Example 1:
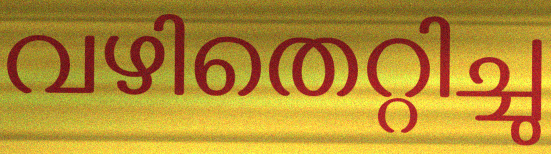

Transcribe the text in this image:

വഴിതെറ്റിച്ചു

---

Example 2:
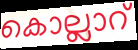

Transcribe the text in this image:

കൊല്ലാറ്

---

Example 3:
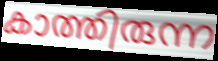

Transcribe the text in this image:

കാത്തിരുന്ന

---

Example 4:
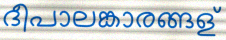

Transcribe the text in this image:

ദീപാലങ്കാരങ്ങള്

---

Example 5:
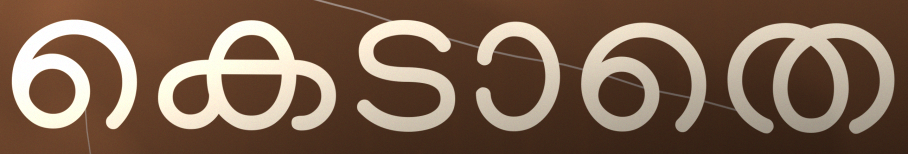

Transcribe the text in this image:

കെടാതെ